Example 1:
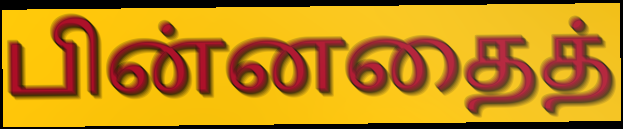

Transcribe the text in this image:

பின்னதைத்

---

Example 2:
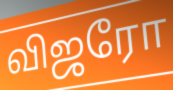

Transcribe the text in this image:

விஜரோ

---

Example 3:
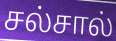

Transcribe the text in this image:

சல்சால்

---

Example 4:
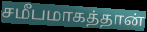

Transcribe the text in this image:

சமீபமாகத்தான்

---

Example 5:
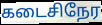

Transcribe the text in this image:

கடைசிநேர